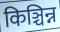
किञ्चिन्न